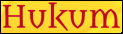
Hukum